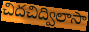
చిదచిద్విలాసా